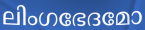
ലിംഗഭേദമോ